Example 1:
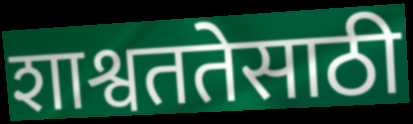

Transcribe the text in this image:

शाश्वततेसाठी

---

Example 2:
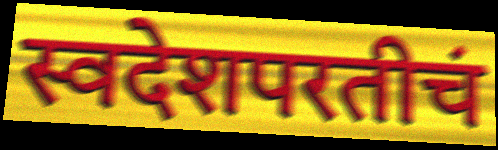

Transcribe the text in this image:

स्वदेशपरतीचं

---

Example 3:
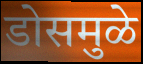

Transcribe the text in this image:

डोसमुळे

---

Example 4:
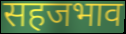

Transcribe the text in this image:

सहजभाव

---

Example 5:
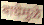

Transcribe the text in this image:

बाधेमुळे